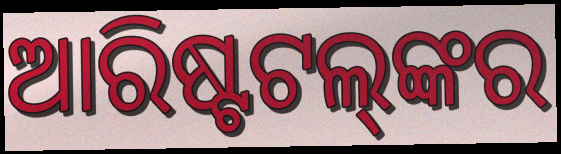
ଆରିଷ୍ଟଟଲ୍‌ଙ୍କର